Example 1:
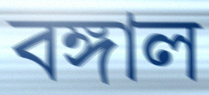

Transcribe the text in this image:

বঙ্গাল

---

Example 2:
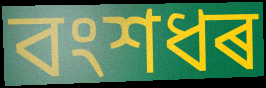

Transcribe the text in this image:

বংশধৰ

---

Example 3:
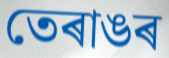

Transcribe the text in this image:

তেৰাঙৰ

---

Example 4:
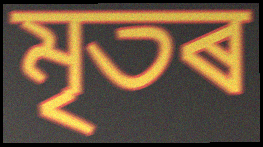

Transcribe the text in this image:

মৃতৰ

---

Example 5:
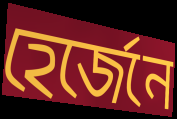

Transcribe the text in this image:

হেৰ্জেনে